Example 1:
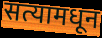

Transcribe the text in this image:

सत्यामधून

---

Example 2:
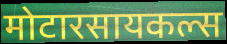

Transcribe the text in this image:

मोटारसायकल्स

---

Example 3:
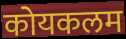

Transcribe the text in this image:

कोयकलम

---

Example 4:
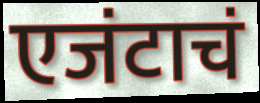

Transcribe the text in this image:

एजंटाचं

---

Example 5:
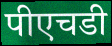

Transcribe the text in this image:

पीएचडी